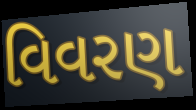
વિવરણ